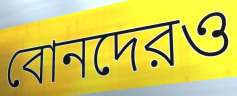
বোনদেরও